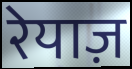
रेयाज़